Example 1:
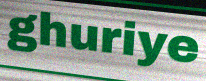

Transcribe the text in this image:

ghuriye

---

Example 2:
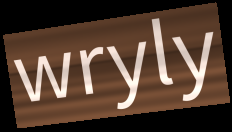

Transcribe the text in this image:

wryly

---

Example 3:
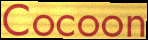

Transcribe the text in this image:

Cocoon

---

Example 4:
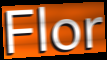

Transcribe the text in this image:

Flor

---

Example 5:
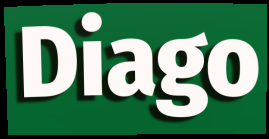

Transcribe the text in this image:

Diago